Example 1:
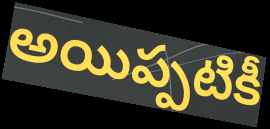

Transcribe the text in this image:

అయిప్పటికీ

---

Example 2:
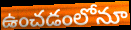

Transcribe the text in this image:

ఉంచడంలోనూ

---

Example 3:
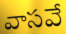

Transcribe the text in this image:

వాసవే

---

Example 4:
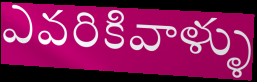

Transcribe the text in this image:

ఎవరికివాళ్ళు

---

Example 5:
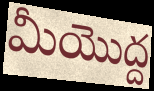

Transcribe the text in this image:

మీయొద్ద